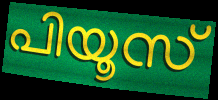
പിയൂസ്